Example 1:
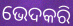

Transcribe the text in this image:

ଭେଦକରି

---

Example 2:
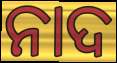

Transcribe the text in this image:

ନାଦ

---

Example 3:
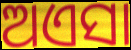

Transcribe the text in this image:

ଅଏସା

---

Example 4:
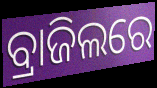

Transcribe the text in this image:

ବ୍ରାଜିଲରେ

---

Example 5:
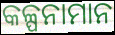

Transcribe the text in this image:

କଳ୍ପନାମାନ